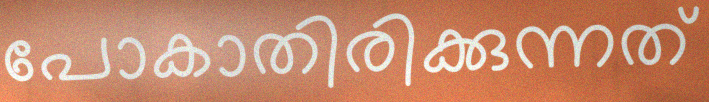
പോകാതിരിക്കുന്നത്